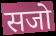
सजो